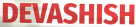
DEVASHISH